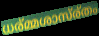
ധര്മ്മശാസ്ര്തം